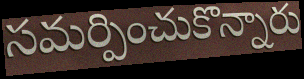
సమర్పించుకొన్నారు